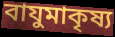
বাযুমাকৃষ্য